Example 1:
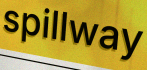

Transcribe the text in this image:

spillway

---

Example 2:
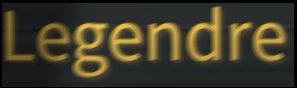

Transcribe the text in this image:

Legendre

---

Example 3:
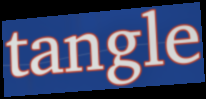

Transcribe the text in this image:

tangle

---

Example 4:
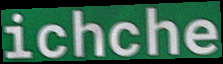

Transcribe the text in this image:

ichche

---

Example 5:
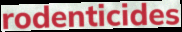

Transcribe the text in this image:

rodenticides